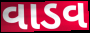
વાડવ